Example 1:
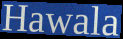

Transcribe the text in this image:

Hawala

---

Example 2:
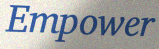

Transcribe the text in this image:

Empower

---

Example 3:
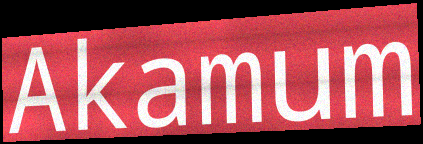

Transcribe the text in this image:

Akamum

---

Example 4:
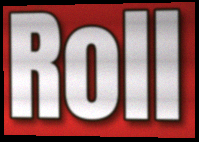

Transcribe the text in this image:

Roll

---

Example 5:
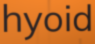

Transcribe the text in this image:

hyoid